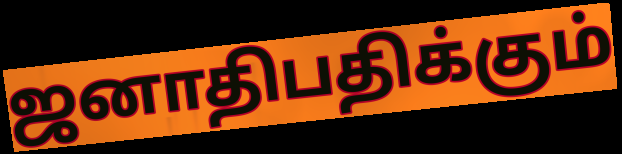
ஜனாதிபதிக்கும்